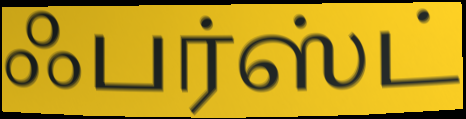
ஃபர்ஸ்ட்